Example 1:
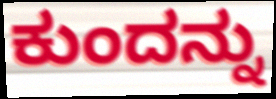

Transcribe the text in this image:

ಕುಂದನ್ನು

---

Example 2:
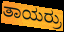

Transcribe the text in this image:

ತಾಯರ್ರು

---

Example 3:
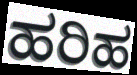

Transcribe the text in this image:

ಹರಿಹ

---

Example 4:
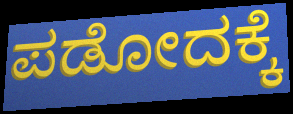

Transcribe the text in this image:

ಪಡೋದಕ್ಕೆ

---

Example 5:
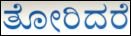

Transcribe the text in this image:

ತೋರಿದರೆ